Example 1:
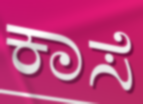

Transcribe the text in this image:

ಕಾಸೆ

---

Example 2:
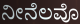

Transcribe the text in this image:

ನೀನೆಲವೊ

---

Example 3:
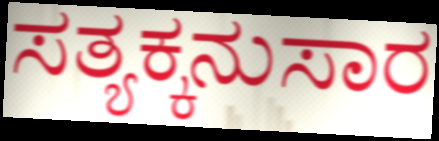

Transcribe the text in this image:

ಸತ್ಯಕ್ಕನುಸಾರ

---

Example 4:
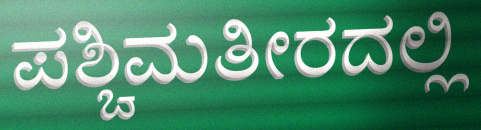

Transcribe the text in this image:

ಪಶ್ಚಿಮತೀರದಲ್ಲಿ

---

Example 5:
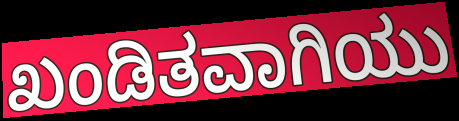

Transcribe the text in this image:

ಖಂಡಿತವಾಗಿಯು